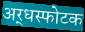
अर्धस्फोटक